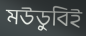
মউডুবিই